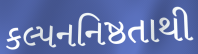
કલ્પનનિષ્ઠતાથી